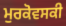
ਮੁਰਕੋਵਸਕੀ